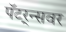
पॅटर्न्सवर